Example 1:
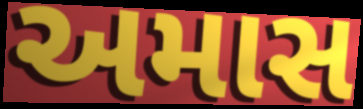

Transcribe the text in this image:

અમાસ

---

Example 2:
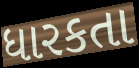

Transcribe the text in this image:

ધારકતા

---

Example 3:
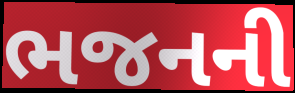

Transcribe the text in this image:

ભજનની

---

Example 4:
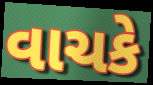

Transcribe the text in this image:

વાચકે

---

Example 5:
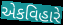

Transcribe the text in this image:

એકવિહારે